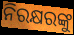
ନିରକ୍ଷରଙ୍କୁ